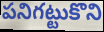
పనిగట్టుకొని